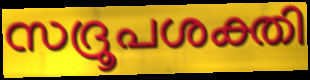
സദ്രൂപശക്തി